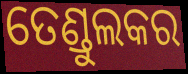
ତେଣ୍ଡୁଲକର